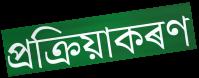
প্ৰক্ৰিয়াকৰণ